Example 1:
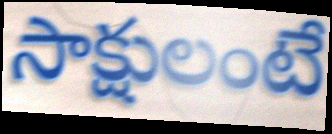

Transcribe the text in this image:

సాక్షులంటే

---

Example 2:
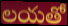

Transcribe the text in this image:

లయతో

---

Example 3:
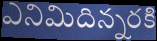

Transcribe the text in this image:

ఎనిమిదిన్నరకి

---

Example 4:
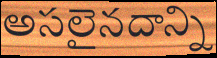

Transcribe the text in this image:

అసలైనదాన్ని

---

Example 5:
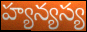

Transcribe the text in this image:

హ్యన్యస్య